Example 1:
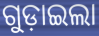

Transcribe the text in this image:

ଗୁଡ଼ାଇଲା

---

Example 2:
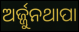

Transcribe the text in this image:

ଅର୍ଜ୍ଜୁନଥାପା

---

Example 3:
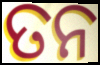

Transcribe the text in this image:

ତନ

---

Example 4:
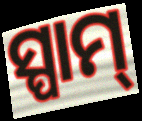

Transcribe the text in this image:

ସ୍ପାମ୍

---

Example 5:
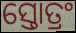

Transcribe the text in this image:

ସ୍ତୋତ୍ରଂ